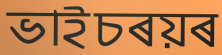
ভাইচৰয়ৰ